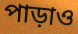
পাড়াও